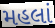
મહલાં